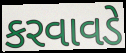
કરવાવડે